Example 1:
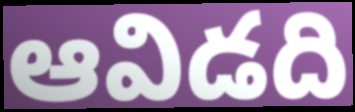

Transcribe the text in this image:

ఆవిడది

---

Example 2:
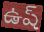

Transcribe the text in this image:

ఉష్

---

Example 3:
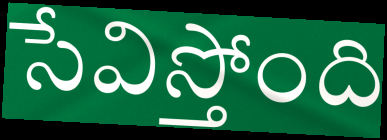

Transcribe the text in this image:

సేవిస్తోంది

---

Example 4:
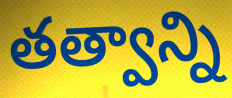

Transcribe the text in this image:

తత్వాన్ని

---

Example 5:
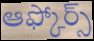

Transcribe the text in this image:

ఆఫ్కోర్స్